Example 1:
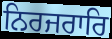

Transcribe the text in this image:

ਨਿਰਜਰਾਰਿ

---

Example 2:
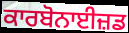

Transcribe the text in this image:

ਕਾਰਬੋਨਾਈਜ਼ਡ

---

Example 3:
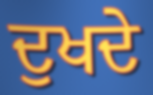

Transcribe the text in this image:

ਦੁਖਦੇ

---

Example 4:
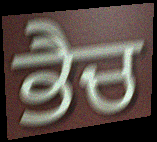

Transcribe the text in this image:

ਭੈਚ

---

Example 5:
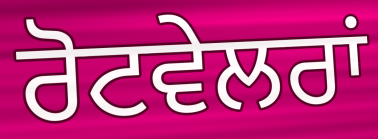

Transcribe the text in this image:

ਰੋਟਵੇਲਰਾਂ